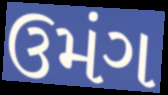
ઉમંગ